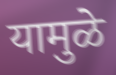
यामुळे